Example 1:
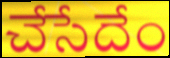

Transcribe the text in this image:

చేసేదేం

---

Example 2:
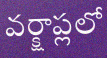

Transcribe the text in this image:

వర్క్షాప్లలో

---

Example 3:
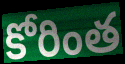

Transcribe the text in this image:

కోరింత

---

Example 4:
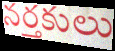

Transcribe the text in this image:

నర్తకులు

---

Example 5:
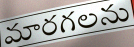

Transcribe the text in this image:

మారగలను